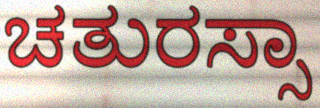
ಚತುರಸ್ಸಾ